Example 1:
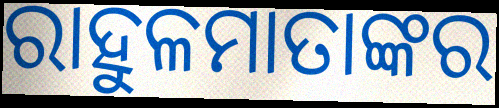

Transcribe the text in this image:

ରାହୁଳମାତାଙ୍କର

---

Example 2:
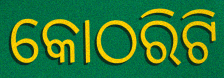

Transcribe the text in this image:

କୋଠରିଟି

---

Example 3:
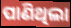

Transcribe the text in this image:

ପାଣିଥିଲା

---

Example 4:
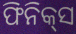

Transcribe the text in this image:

ଫିନିକ୍‍ସ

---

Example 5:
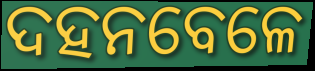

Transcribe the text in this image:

ଦହନବେଳେ